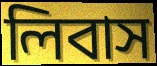
লিবাস